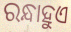
ରନ୍ଧାହୁଏ